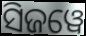
ସିଜୱେ